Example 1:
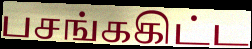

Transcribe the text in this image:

பசங்ககிட்ட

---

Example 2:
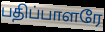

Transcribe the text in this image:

பதிப்பாளரே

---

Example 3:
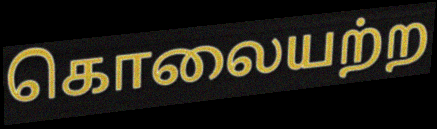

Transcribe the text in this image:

கொலையற்ற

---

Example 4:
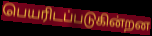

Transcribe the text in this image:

பெயரிடப்படுகின்றன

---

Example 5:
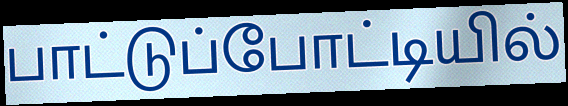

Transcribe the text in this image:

பாட்டுப்போட்டியில்